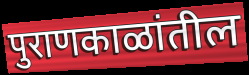
पुराणकाळांतील